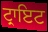
ਟ੍ਰਾਇਟ